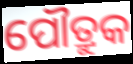
ପୌତ୍ରୁକ